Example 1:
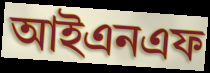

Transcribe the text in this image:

আইএনএফ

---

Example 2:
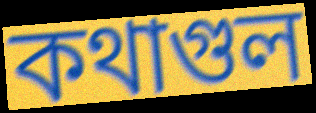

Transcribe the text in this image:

কথাগুল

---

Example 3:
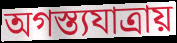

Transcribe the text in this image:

অগস্ত্যযাত্রায়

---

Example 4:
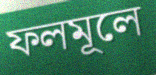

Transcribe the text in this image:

ফলমূলে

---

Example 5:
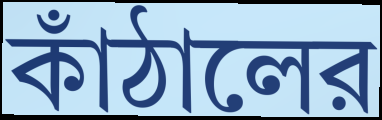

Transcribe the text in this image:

কাঁঠালের